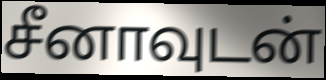
சீனாவுடன்